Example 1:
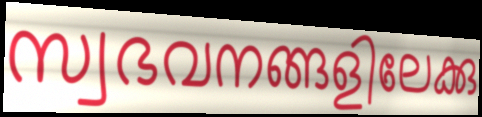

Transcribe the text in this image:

സ്വഭവനങ്ങളിലേക്കു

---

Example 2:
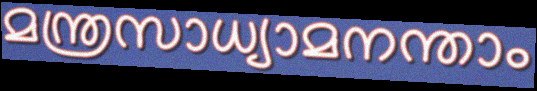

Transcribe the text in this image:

മന്ത്രസാധ്യാമനന്താം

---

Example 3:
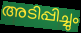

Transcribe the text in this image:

അടിപ്പിച്ചും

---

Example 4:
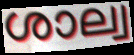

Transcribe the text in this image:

ശാല്വ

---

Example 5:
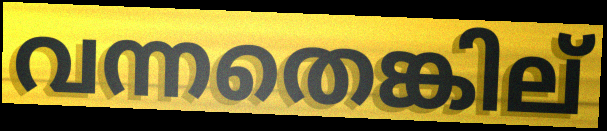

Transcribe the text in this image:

വന്നതെങ്കില്